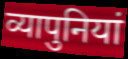
व्यापुनियां